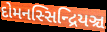
દોમનસ્સિન્દ્રિયઞ્ચ